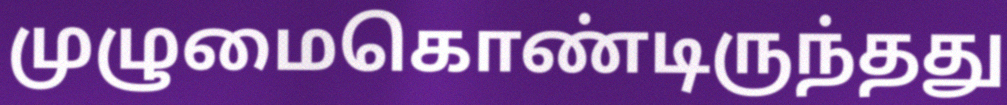
முழுமைகொண்டிருந்தது